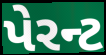
પેરન્ટ